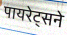
पायरेट्सने